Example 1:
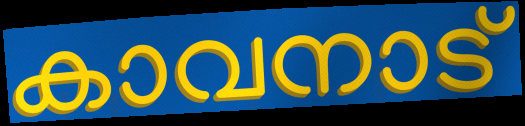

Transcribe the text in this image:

കാവനാട്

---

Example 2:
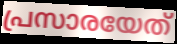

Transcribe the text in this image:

പ്രസാരയേത്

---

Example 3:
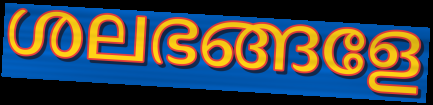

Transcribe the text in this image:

ശലഭങ്ങളേ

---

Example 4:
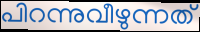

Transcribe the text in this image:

പിറന്നുവീഴുന്നത്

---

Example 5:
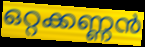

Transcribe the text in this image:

ഒറ്റക്കണ്ണൻ